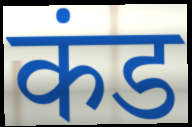
कंड